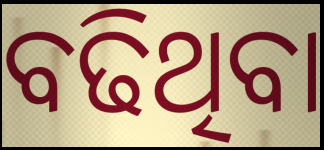
ବଢିଥିବା